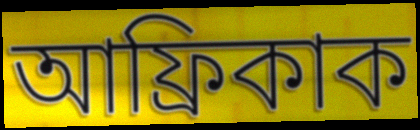
আফ্ৰিকাক